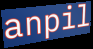
anpil